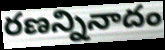
రణన్నినాదం